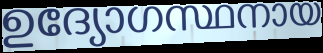
ഉദ്യോഗസ്ഥനായ